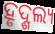
ହୃଦ୍ଶଲ୍ୟ